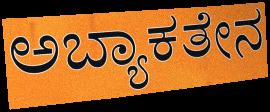
ಅಬ್ಯಾಕತೇನ